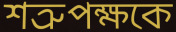
শত্রুপক্ষকে